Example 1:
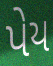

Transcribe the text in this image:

પેય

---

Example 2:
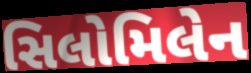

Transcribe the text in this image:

સિલોમિલેન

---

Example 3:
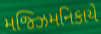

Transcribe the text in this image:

મજ્ઝિમનિકાયે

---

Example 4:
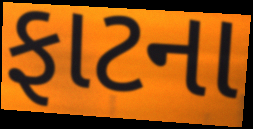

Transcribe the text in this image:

ફાટના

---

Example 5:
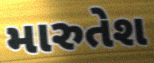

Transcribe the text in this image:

મારુતેશ